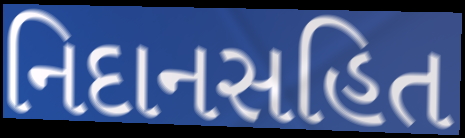
નિદાનસહિત